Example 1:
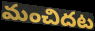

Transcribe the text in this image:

మంచిదట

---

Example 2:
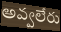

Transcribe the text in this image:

అవ్వలేరు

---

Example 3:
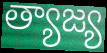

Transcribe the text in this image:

త్యాజ్య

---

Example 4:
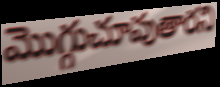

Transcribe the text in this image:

మొగ్గుచూపుతారని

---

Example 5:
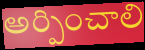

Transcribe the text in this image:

అర్పించాలి